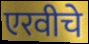
एरवीचे